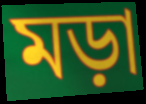
মড়া